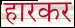
हारकर